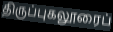
திருப்புகலூரைப்